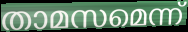
താമസമെന്ന്